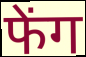
फेंग